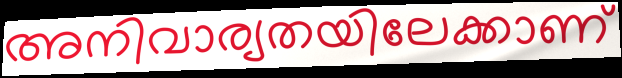
അനിവാര്യതയിലേക്കാണ്